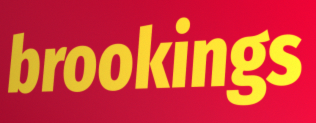
brookings